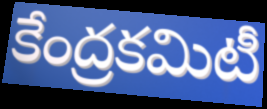
కేంద్రకమిటీ